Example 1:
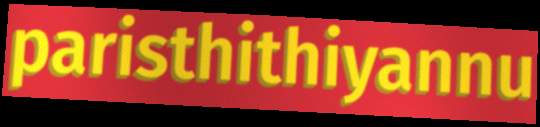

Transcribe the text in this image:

paristhithiyannu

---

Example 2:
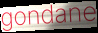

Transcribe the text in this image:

gondane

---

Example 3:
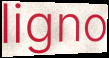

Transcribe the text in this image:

ligno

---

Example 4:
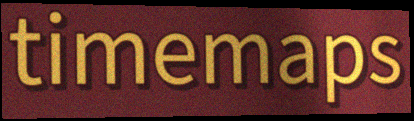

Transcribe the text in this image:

timemaps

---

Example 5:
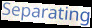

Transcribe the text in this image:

Separating